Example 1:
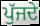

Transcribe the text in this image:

ਪੁੱਜਦੇ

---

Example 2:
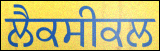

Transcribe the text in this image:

ਲੈਕਸੀਕਲ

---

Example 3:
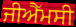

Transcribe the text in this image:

ਜੀਐੱਮਸੀ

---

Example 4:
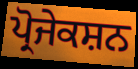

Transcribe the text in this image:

ਪ੍ਰੋਜੇਕਸ਼ਨ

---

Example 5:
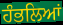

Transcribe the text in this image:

ਹੰਭਲਿਆਂ